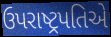
ઉપરાષ્ટ્રપતિએ